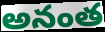
అనంత